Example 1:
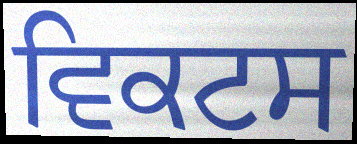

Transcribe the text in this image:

ਵਿਕਟਸ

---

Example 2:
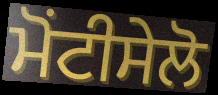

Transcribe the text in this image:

ਮੋਂਟੀਸੇਲੋ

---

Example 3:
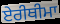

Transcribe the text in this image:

ਏਰੀਥੀਮਾ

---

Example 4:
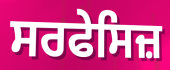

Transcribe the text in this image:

ਸਰਫੇਸਿਜ਼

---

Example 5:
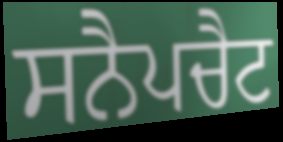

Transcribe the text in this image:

ਸਨੈਪਚੈਟ